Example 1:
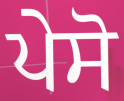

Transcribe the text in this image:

ਪੇਸੋ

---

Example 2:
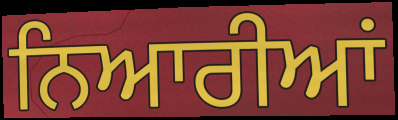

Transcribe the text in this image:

ਨਿਆਰੀਆਂ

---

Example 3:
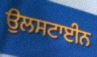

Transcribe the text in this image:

ਉਲਸਟਾਈਨ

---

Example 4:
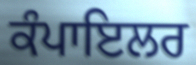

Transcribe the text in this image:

ਕੰਪਾਇਲਰ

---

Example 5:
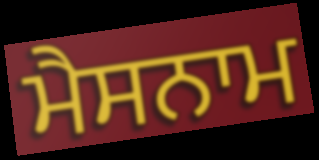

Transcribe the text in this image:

ਮੈਸਨਾਮ